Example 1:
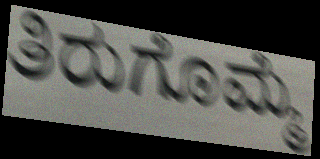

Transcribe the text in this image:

ತಿರುಗೊಮ್ಮೆ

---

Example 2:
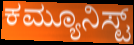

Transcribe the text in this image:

ಕಮ್ಯೂನಿಸ್ಟ್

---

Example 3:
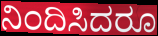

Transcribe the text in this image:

ನಿಂದಿಸಿದರೂ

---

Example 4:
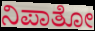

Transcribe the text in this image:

ನಿಪಾತೋ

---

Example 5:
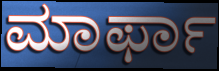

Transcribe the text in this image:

ಮಾರ್ಫಾ